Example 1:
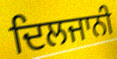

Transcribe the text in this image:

ਦਿਲਜਾਨੀ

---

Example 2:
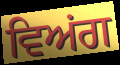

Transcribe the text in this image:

ਵਿਅਂਗ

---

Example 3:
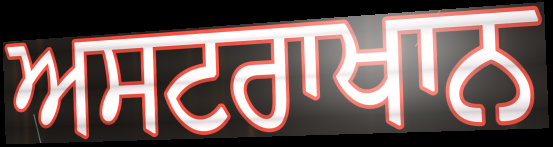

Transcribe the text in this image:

ਅਸਟਰਾਖਾਨ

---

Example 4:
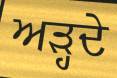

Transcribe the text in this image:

ਅੜ੍ਹਦੇ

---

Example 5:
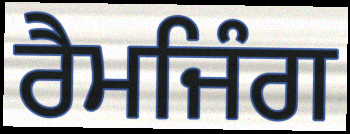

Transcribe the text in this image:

ਰੈਮਜਿੰਗ